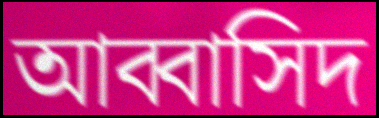
আব্বাসিদ